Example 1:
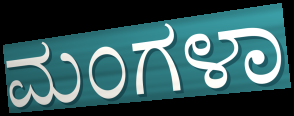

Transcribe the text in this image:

ಮಂಗಳಾ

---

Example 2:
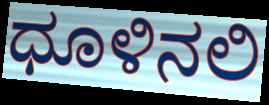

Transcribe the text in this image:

ಧೂಳಿನಲಿ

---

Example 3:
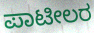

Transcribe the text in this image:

ಪಾಟೀಲರ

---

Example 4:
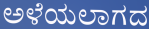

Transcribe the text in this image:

ಅಳೆಯಲಾಗದ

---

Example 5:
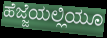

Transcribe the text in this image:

ಹೆಜ್ಜೆಯಲ್ಲಿಯೂ